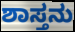
ಶಾಸ್ತನು